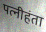
पत्नीहंता